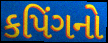
કપિંગનો